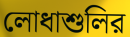
লোধাশুলির